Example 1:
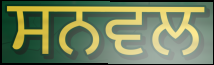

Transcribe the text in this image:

ਸਨਵਲ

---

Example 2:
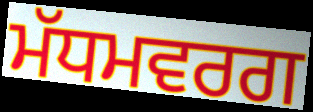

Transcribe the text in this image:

ਮੱਧਮਵਰਗ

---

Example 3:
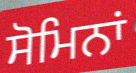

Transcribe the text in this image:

ਸੋਮਿਨਾਂ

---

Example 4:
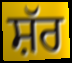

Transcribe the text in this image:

ਸ਼ੱਰ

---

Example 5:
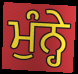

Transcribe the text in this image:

ਮੁੰਨ੍ਹੇ